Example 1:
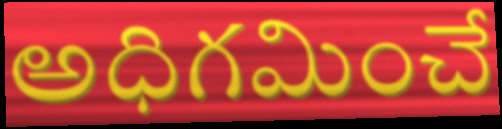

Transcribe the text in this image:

అధిగమించే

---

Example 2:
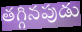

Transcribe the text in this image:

తగ్గినపుడు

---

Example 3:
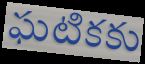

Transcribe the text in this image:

ఘటికకు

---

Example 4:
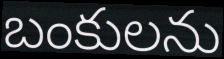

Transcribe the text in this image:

బంకులను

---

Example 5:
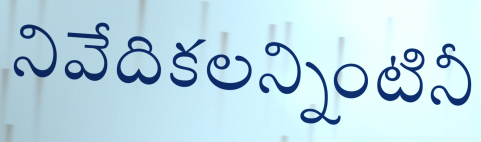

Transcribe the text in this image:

నివేదికలన్నింటినీ